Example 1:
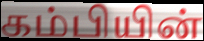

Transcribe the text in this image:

கம்பியின்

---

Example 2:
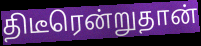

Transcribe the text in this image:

திடீரென்றுதான்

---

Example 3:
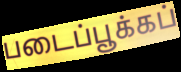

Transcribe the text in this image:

படைப்பூக்கப்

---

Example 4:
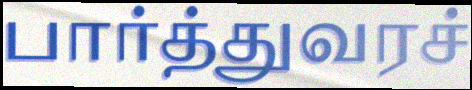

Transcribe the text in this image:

பார்த்துவரச்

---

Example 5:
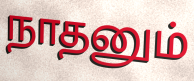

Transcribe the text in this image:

நாதனும்